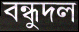
বন্ধুদল